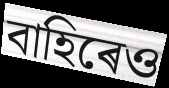
বাহিৰেও